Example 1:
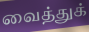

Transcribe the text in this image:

வைத்துக்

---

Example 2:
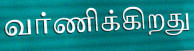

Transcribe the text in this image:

வர்ணிக்கிறது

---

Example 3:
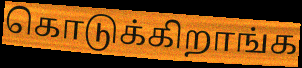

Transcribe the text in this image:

கொடுக்கிறாங்க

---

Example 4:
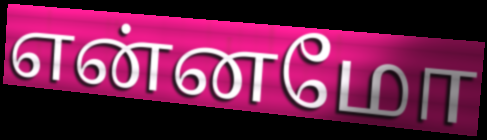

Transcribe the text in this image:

என்னமோ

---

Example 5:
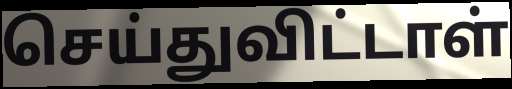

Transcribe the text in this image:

செய்துவிட்டாள்